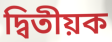
দ্বিতীয়ক